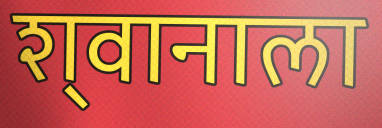
श्वानाला